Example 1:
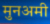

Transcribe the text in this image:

मुनअमी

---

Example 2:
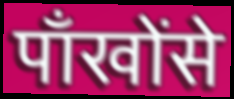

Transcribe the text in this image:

पाँखोंसे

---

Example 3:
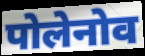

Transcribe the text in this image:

पोलेनोव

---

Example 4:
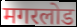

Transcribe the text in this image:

मगरलोड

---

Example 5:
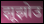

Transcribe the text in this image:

झूझोउ